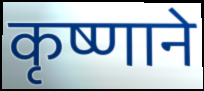
कृष्णाने